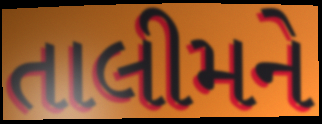
તાલીમને